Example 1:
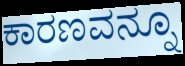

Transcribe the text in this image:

ಕಾರಣವನ್ನೂ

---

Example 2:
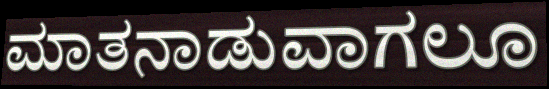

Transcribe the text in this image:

ಮಾತನಾಡುವಾಗಲೂ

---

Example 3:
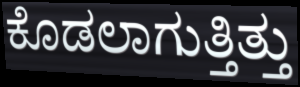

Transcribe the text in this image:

ಕೊಡಲಾಗುತ್ತಿತ್ತು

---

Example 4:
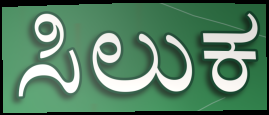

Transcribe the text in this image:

ಸಿಲುಕ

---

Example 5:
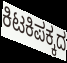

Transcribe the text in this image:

ಕಿಟಕಿಪಕ್ಕದ